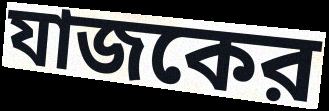
যাজকের